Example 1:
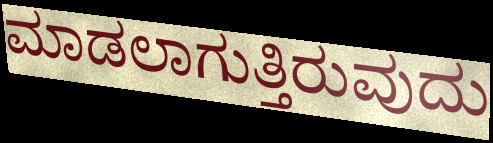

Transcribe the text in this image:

ಮಾಡಲಾಗುತ್ತಿರುವುದು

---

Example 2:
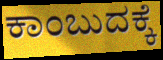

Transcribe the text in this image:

ಕಾಂಬುದಕ್ಕೆ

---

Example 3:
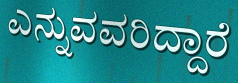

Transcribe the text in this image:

ಎನ್ನುವವರಿದ್ದಾರೆ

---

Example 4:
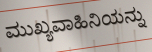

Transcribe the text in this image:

ಮುಖ್ಯವಾಹಿನಿಯನ್ನು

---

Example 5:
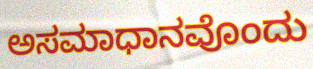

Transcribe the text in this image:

ಅಸಮಾಧಾನವೊಂದು